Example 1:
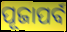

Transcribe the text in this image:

ପୂଜାପର୍ବ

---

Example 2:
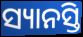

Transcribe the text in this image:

ସ୍ୟାନସ୍ତି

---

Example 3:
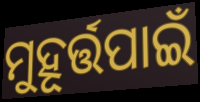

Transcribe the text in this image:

ମୁହୂର୍ତ୍ତପାଇଁ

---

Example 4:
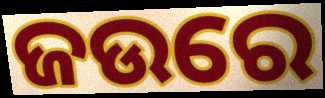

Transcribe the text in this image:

ଜଉରେ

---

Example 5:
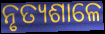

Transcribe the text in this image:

ନୃତ୍ୟଶାଳେ